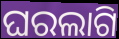
ଘରଲାଗି